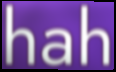
hah